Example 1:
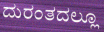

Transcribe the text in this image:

ದುರಂತದಲ್ಲೂ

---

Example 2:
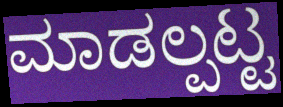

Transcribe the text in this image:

ಮಾಡಲ್ಪಟ್ಟ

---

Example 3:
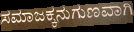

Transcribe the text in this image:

ಸಮಾಜಕ್ಕನುಗುಣವಾಗಿ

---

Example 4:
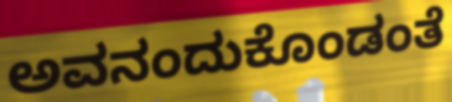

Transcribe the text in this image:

ಅವನಂದುಕೊಂಡಂತೆ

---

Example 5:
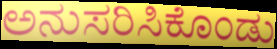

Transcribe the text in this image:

ಅನುಸರಿಸಿಕೊಂಡು